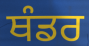
ਥੰਡਰ